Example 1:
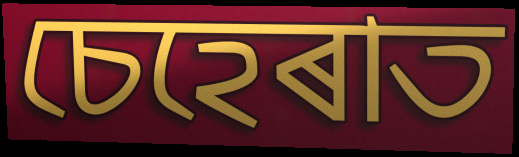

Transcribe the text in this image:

চেহেৰাত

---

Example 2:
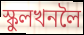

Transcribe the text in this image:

স্কুলখনলৈ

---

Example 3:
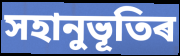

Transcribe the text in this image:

সহানুভূতিৰ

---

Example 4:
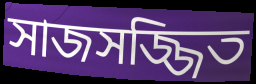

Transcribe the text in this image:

সাজসজ্জিত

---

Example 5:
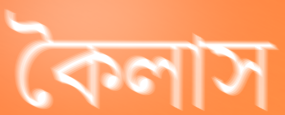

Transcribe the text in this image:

কৈলাস